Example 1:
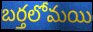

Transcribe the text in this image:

బర్తలోమయి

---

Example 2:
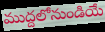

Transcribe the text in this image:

ముద్దలోనుండియే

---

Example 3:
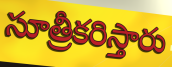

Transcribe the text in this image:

సూత్రీకరిస్తారు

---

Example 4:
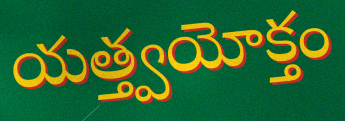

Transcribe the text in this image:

యత్త్వయోక్తం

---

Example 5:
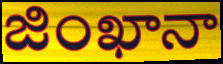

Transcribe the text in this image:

జింఖానా